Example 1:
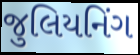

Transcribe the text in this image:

જુલિયનિંગ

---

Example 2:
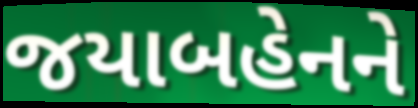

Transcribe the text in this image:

જયાબહેનને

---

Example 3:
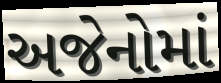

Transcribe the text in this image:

અજેનોમાં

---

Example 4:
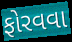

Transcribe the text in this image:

ફોરવવા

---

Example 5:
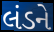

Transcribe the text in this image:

લંડને